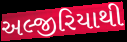
અલ્જીરિયાથી